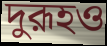
দুরূহও